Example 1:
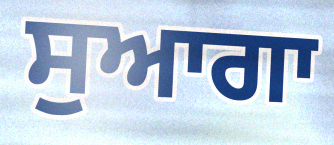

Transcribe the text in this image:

ਸੁਆਗਾ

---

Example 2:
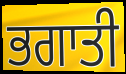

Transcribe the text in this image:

ਭਗਾਤੀ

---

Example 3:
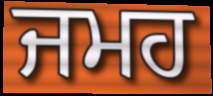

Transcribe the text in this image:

ਜਮਹ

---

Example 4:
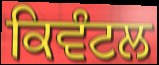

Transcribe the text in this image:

ਕਿਵੰਟਲ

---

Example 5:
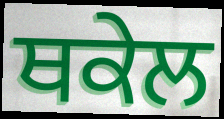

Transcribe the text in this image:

ਥਕੇਲ